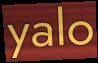
yalo